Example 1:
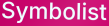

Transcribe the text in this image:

Symbolist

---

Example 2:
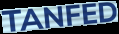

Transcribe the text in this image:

TANFED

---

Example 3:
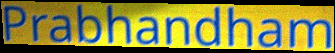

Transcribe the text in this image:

Prabhandham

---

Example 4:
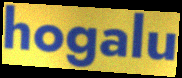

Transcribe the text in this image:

hogalu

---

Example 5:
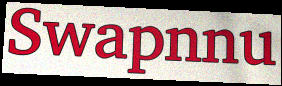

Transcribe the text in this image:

Swapnnu